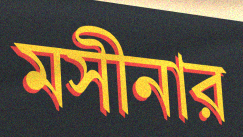
মসীনার